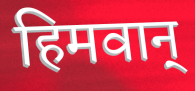
हिमवान्